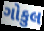
ગોકુલ